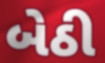
બેઠી